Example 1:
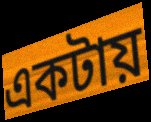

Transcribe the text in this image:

একটায়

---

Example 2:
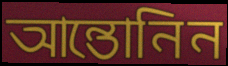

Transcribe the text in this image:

আন্তোনিন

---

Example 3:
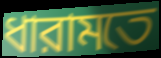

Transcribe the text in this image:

ধারামতে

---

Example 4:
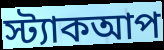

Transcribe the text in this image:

স্ট্যাকআপ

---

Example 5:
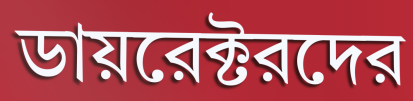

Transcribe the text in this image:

ডায়রেক্টরদের